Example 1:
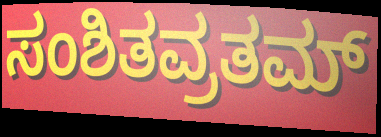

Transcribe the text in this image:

ಸಂಶಿತವ್ರತಮ್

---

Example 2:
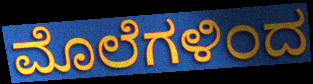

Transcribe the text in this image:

ಮೊಲೆಗಳಿಂದ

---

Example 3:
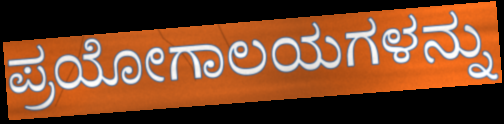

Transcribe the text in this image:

ಪ್ರಯೋಗಾಲಯಗಳನ್ನು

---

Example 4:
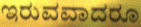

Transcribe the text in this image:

ಇರುವವಾದರೂ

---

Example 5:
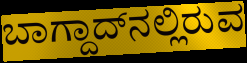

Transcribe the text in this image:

ಬಾಗ್ದಾದ್‌ನಲ್ಲಿರುವ